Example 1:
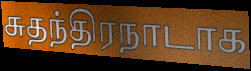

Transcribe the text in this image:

சுதந்திரநாடாக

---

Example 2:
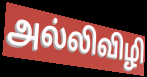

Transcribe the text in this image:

அல்லிவிழி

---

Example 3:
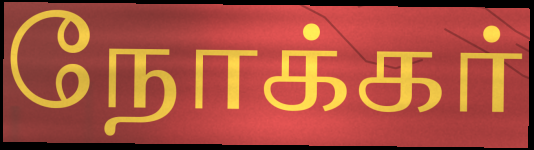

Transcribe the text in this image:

நோக்கர்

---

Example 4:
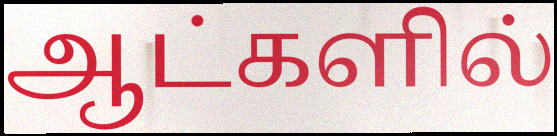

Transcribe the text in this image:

ஆட்களில்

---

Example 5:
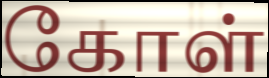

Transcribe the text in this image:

கோள்